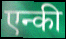
एन्की